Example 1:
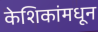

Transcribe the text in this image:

केशिकांमधून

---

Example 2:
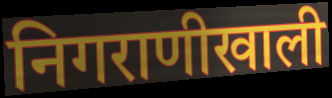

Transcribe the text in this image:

निगराणीखाली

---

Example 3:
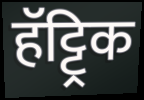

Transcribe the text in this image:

हॅट्ट्रिक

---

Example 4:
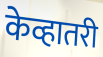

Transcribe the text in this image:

केव्हातरी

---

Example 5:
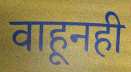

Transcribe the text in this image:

वाहूनही